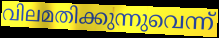
വിലമതിക്കുന്നുവെന്ന്